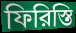
ফিরিস্তি